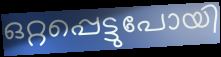
ഒറ്റപ്പെട്ടുപോയി